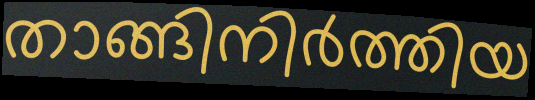
താങ്ങിനിർത്തിയ